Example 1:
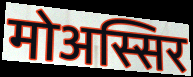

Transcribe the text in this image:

मोअस्सिर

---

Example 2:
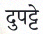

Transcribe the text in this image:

दुपट्टे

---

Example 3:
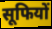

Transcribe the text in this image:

सूफियों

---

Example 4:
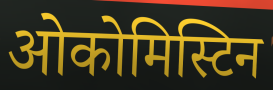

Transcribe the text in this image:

ओकोमिस्टिन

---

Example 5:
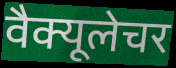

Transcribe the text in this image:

वैक्यूलेचर